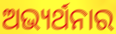
ଅଭ୍ୟର୍ଥନାର